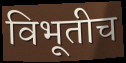
विभूतीच